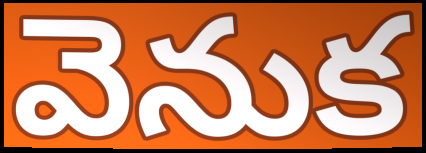
వెనుక